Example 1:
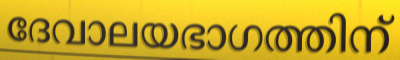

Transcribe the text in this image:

ദേവാലയഭാഗത്തിന്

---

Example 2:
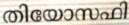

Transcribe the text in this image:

തിയോസഫി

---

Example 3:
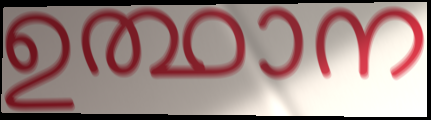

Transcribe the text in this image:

ഉത്ഥാന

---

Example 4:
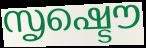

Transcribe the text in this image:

സൃഷ്ടൌ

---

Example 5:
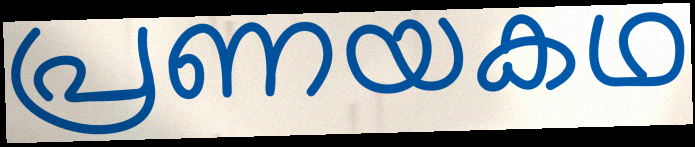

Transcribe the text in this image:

പ്രണയകഥ